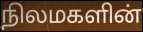
நிலமகளின்